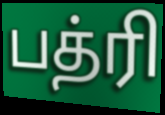
பத்ரி